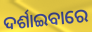
ଦର୍ଶାଇବାରେ